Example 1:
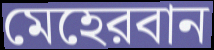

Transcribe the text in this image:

মেহেরবান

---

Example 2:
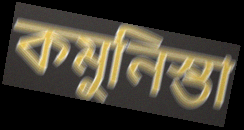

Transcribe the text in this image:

কমুনিস্তা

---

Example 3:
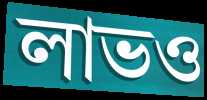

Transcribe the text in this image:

লাভও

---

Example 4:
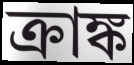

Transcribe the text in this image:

ক্রাঙ্ক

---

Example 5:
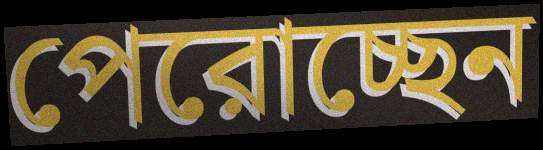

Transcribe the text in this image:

পেরোচ্ছেন